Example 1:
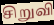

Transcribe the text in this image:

சிறுவி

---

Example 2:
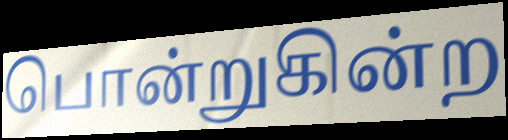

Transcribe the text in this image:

பொன்றுகின்ற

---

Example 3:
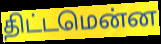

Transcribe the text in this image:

திட்டமென்ன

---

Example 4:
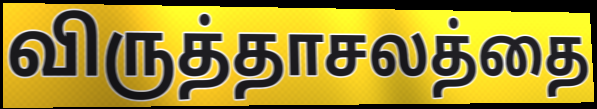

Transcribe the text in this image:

விருத்தாசலத்தை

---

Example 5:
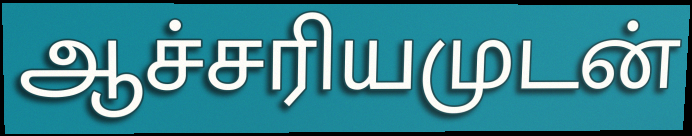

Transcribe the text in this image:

ஆச்சரியமுடன்